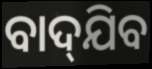
ବାଦ୍‌ଯିବ